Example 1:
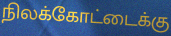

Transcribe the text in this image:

நிலக்கோட்டைக்கு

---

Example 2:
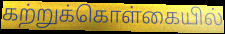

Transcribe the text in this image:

கற்றுக்கொள்கையில்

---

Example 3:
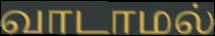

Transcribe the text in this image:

வாடாமல்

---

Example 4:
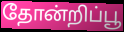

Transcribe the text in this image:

தோன்றிப்பூ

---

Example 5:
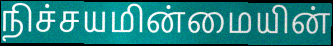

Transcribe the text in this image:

நிச்சயமின்மையின்